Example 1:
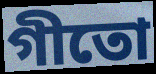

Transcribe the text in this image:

গীতো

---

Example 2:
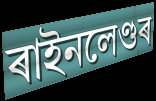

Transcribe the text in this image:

ৰাইনলেণ্ডৰ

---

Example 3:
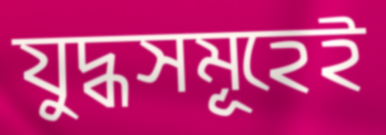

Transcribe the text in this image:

যুদ্ধসমূহেই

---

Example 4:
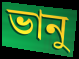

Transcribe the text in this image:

ভানু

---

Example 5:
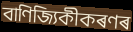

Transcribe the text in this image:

বাণিজ্যিকীকৰণৰ